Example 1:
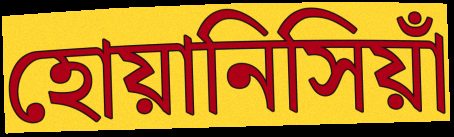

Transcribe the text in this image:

হোয়ানিসিয়াঁ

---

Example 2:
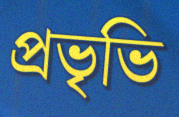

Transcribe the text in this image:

প্রভৃভি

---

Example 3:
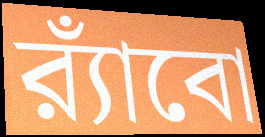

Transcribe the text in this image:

র‍্যাঁবো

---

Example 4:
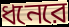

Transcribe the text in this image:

ধনেরে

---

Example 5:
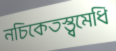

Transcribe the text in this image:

নচিকেতস্ত্বমেধি